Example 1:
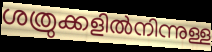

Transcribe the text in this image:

ശത്രുക്കളിൽനിന്നുള്ള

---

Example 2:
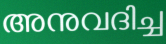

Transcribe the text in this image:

അനുവദിച്ച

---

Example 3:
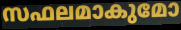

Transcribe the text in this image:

സഫലമാകുമോ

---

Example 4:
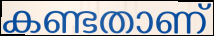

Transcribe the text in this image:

കണ്ടതാണ്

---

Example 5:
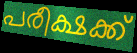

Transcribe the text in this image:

പരീക്ഷക്ക്